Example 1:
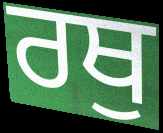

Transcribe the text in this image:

ਰਥੁ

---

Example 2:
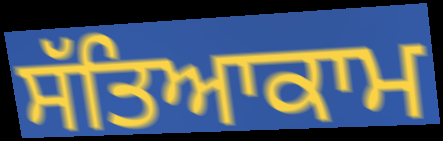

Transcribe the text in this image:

ਸੱਤਿਆਕਾਮ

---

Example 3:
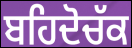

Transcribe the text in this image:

ਬਹਿਦੋਚੱਕ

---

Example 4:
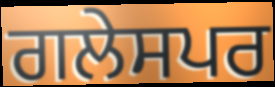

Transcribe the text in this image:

ਗਲੇਸਪਰ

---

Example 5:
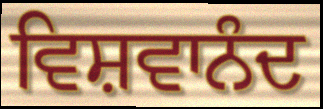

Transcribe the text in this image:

ਵਿਸ਼ਵਾਨੰਦ